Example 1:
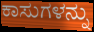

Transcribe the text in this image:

ಕಾಸುಗಳನ್ನು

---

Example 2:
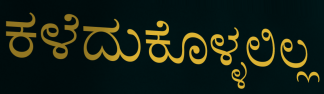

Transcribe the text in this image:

ಕಳೆದುಕೊಳ್ಳಲಿಲ್ಲ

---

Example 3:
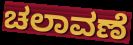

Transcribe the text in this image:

ಚಲಾವಣೆ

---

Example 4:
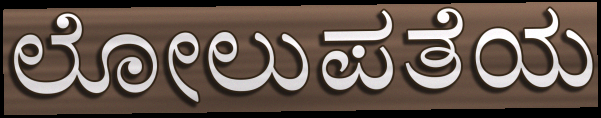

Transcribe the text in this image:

ಲೋಲುಪತೆಯ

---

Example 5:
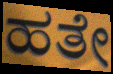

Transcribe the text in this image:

ಹತೇ